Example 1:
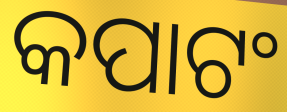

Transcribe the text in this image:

କପାଟଂ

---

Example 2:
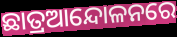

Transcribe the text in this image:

ଛାତ୍ରଆନ୍ଦୋଳନରେ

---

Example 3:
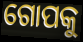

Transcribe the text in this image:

ଗୋପକୁ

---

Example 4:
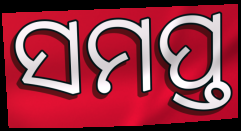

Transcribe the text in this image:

ସମପ୍ତ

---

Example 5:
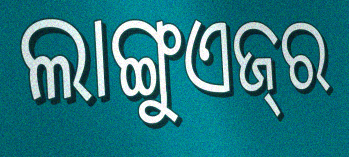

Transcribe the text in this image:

ଲାଙ୍ଗୁଏଜ୍‌ର